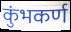
कुंभकर्ण